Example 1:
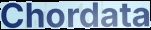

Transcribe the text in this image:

Chordata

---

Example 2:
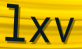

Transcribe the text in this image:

lxv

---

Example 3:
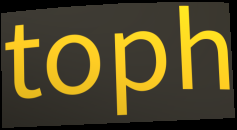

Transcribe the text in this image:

toph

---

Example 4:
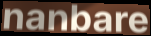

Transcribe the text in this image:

nanbare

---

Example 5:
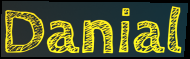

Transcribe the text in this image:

Danial